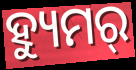
ହ୍ୟୁମର୍